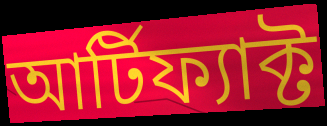
আর্টিফ্যাক্ট